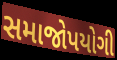
સમાજોપયોગી